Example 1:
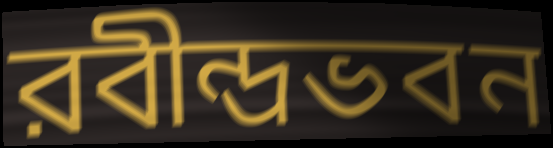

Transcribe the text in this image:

রবীন্দ্রভবন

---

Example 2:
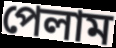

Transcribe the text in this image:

পেলাম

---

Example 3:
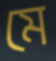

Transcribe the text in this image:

মে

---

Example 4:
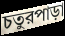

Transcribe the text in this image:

চতুরপাড়া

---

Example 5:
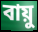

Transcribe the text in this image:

বায়ু